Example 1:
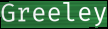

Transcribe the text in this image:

Greeley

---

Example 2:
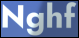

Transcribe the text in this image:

Nghf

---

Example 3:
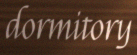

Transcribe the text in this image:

dormitory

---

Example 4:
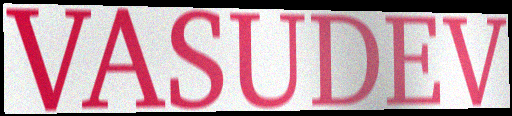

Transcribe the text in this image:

VASUDEV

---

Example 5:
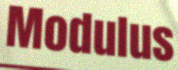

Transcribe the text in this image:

Modulus